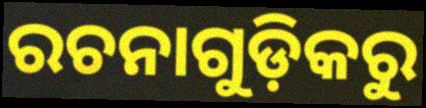
ରଚନାଗୁଡ଼ିକରୁ